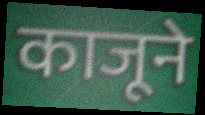
काजूने